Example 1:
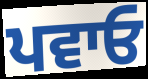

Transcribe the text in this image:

ਪਵਾਓ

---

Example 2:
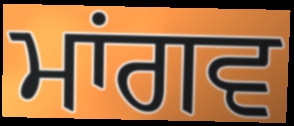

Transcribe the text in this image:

ਮਾਂਗਵ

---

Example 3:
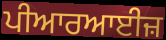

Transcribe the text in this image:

ਪੀਆਰਆਈਜ਼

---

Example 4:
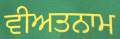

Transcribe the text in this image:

ਵੀਅਤਨਾਮ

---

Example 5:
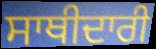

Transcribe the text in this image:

ਸਾਥੀਦਾਰੀ